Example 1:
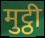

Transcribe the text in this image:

मुट्ठी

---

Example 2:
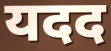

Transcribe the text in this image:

यदद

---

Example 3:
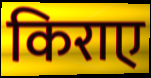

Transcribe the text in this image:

किराए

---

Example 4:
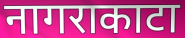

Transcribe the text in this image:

नागराकाटा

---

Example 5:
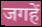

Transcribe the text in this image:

जगहें